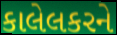
કાલેલકરને